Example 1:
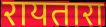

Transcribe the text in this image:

रायतारा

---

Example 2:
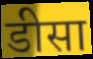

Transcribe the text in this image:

डीसा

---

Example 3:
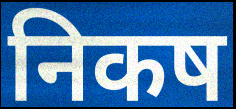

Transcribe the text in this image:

निकष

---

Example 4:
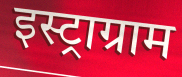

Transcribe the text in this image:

इस्ट्राग्राम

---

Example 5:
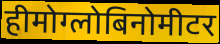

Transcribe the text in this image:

हीमोग्लोबिनोमीटर